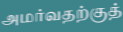
அமர்வதற்குத்